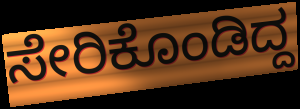
ಸೇರಿಕೊಂಡಿದ್ದ